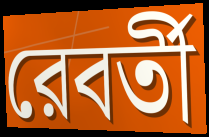
রেবর্তী